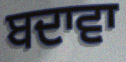
ਬਦਾਵਾ